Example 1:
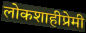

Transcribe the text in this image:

लोकशाहीप्रेमी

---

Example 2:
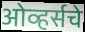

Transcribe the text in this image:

ओव्हर्सचे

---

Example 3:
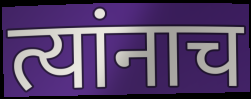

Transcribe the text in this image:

त्यांनाच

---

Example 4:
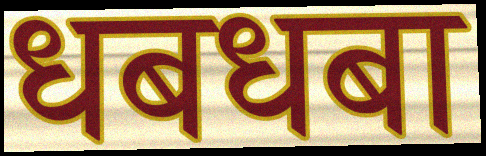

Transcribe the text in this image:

धबधबा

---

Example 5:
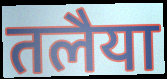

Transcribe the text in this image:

तलैया